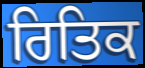
ਰਿਤਿਕ